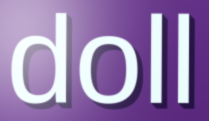
doll